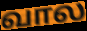
வால